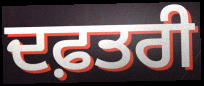
ਦਫ਼ਤਰੀ